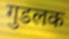
गुडलक